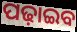
ପଢ଼ାଇବ